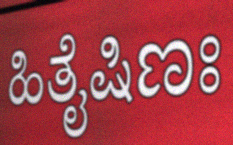
ಹಿತೈಷಿಣಃ